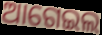
ଆଗେଇଲ